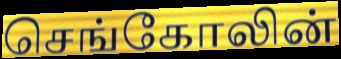
செங்கோலின்